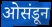
ओसंडून